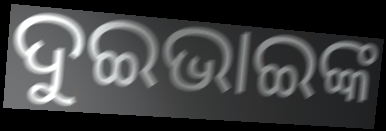
ଦୁଇଭାଇଙ୍କ